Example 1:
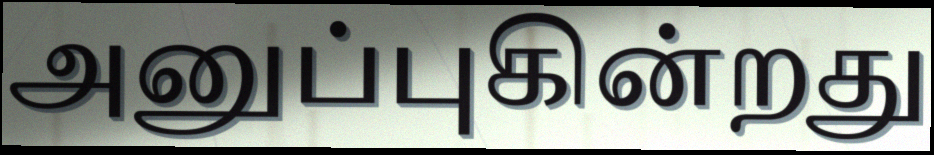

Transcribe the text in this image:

அனுப்புகின்றது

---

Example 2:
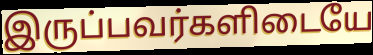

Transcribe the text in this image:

இருப்பவர்களிடையே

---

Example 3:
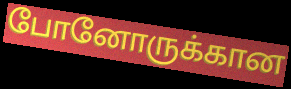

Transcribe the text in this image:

போனோருக்கான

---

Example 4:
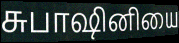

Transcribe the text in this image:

சுபாஷினியை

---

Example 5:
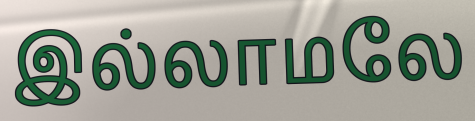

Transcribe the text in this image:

இல்லாமலே